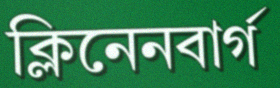
ক্লিনেনবার্গ